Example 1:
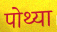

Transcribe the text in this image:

पोथ्या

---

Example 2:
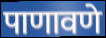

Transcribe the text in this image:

पाणावणे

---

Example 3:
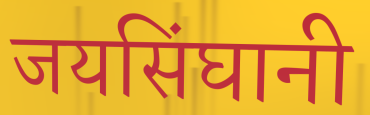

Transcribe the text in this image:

जयसिंघानी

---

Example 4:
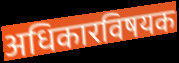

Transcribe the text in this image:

अधिकारविषयक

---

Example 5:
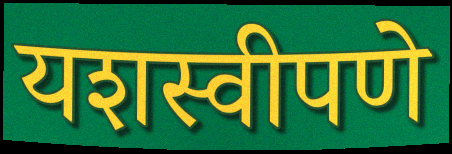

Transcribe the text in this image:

यशस्वीपणे